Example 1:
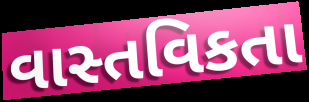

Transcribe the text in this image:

વાસ્તવિકતા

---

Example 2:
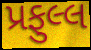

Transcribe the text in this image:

પ્રફુલ્લ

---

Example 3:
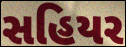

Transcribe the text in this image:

સહિયર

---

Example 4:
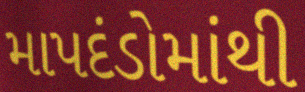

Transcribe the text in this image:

માપદંડોમાંથી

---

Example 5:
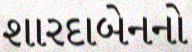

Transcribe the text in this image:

શારદાબેનનો